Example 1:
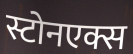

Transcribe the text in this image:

स्टोनएक्स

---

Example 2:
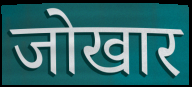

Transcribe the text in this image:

जोखार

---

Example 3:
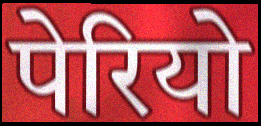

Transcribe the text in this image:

पेरियो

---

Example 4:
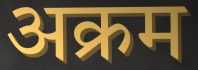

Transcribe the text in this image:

अक्रम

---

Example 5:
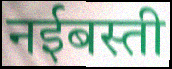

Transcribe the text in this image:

नईबस्ती